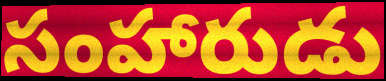
సంహారుడు